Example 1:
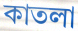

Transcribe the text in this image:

কাতলা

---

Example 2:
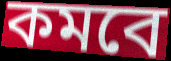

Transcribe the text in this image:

কমবে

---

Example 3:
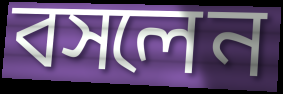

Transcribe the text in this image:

বসলেন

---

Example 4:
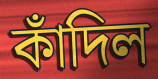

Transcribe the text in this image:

কাঁদিল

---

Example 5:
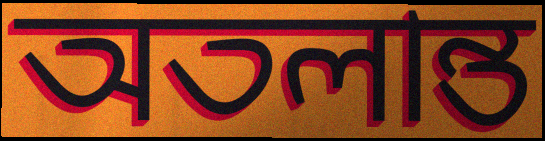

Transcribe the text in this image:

অতলান্ত